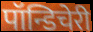
पॉन्डिचेरी